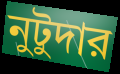
নুটুদার